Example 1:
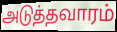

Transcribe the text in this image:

அடுத்தவாரம்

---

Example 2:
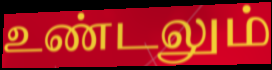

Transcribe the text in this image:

உண்டலும்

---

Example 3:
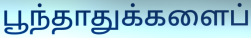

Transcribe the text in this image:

பூந்தாதுக்களைப்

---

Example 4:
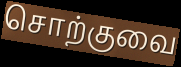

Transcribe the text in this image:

சொற்குவை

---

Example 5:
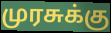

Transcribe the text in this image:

முரசுக்கு